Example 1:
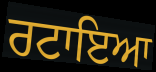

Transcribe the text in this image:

ਰਟਾਇਆ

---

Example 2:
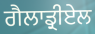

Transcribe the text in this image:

ਗੈਲਾਡ੍ਰੀਏਲ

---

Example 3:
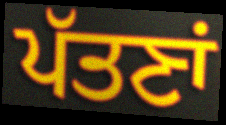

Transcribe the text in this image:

ਪੱਤਣਾਂ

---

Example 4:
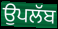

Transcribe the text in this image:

ਉਪਲੱਬ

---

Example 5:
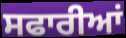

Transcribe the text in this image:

ਸਫਾਰੀਆਂ